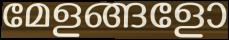
മേളങ്ങളോ